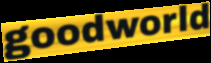
goodworld